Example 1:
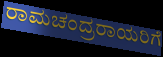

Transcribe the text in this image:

ರಾಮಚಂದ್ರರಾಯರಿಗೆ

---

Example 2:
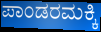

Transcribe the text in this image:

ಪಾಂಡರಮಕ್ಕಿ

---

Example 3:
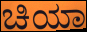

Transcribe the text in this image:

ಚಿಯಾ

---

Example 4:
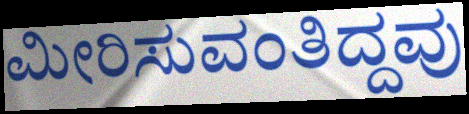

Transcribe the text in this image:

ಮೀರಿಸುವಂತಿದ್ದವು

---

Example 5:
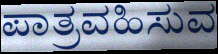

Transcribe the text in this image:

ಪಾತ್ರವಹಿಸುವ